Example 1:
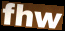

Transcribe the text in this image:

fhw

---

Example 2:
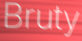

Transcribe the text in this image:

Bruty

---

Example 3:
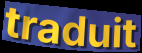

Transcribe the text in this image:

traduit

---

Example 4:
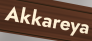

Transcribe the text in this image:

Akkareya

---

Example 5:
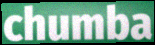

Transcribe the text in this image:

chumba